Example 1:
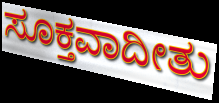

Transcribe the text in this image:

ಸೂಕ್ತವಾದೀತು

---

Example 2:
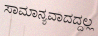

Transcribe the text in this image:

ಸಾಮಾನ್ಯವಾದದ್ದಲ್ಲ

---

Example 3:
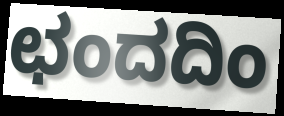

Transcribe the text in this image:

ಛಂದದಿಂ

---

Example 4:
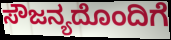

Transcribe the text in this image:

ಸೌಜನ್ಯದೊಂದಿಗೆ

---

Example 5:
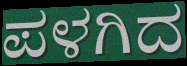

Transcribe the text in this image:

ಪಳಗಿದ